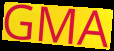
GMA